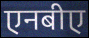
एनबीए